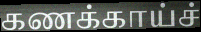
கணக்காய்ச்